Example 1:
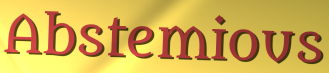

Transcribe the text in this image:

Abstemious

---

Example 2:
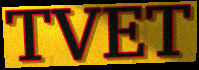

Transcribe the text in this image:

TVET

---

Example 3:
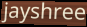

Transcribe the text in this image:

jayshree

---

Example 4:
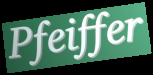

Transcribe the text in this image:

Pfeiffer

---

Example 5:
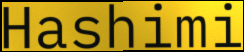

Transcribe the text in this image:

Hashimi